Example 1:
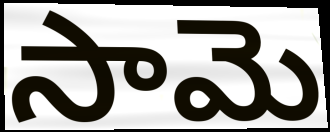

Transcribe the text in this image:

సామె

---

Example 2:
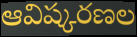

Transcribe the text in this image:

ఆవిష్కరణల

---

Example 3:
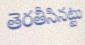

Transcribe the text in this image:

తెరతీసినట్టు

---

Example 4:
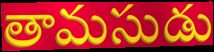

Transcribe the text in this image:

తామసుడు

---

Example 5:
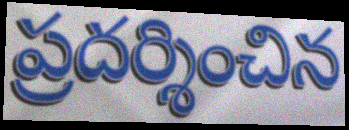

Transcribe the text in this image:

ప్రదర్శించిన